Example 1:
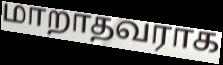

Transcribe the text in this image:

மாறாதவராக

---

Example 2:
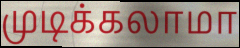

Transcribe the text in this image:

முடிக்கலாமா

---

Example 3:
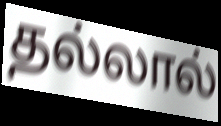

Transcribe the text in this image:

தல்லால்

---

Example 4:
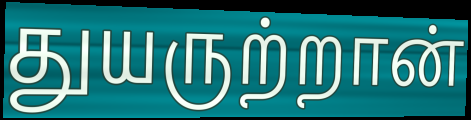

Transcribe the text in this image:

துயருற்றான்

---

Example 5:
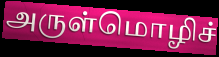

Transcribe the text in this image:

அருள்மொழிச்